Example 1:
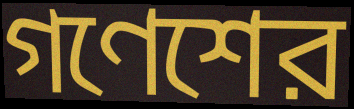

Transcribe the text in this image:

গণেশের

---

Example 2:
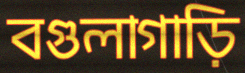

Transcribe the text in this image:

বগুলাগাড়ি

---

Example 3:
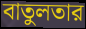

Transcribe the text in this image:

বাতুলতার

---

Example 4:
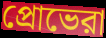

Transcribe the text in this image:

প্রোভেরা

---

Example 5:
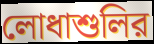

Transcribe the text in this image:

লোধাশুলির